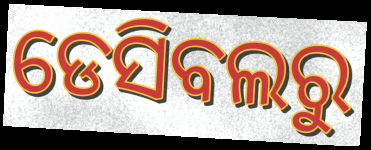
ଡେସିବଲରୁ